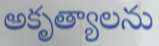
అకృత్యాలను